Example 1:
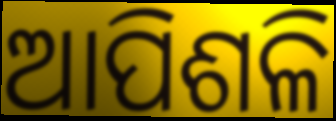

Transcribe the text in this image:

ଆପିଶଳି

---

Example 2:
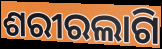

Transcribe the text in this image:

ଶରୀରଲାଗି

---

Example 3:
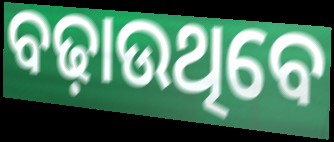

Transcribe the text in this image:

ବଢ଼ାଉଥିବେ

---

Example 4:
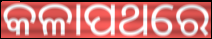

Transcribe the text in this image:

କଳାପଥରେ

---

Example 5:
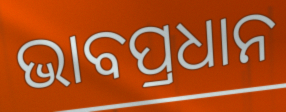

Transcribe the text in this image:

ଭାବପ୍ରଧାନ